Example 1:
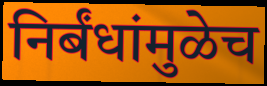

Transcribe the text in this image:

निर्बंधांमुळेच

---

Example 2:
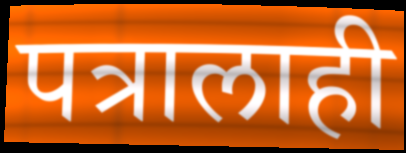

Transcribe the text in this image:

पत्रालाही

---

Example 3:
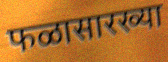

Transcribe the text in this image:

फळासारख्या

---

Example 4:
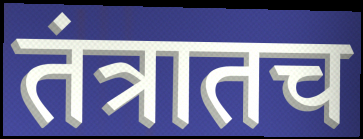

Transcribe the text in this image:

तंत्रातच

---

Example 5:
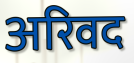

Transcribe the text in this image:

अरिवद